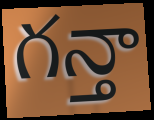
గన్తా